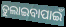
ତୁଲାଇବାପାଇଁ